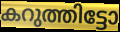
കറുത്തിട്ടോ